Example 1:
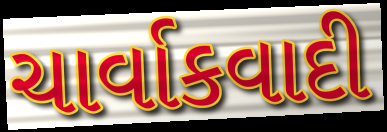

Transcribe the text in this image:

ચાર્વાકવાદી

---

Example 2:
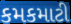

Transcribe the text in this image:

કમકમાટી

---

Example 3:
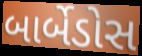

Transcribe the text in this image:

બાર્બેડોસ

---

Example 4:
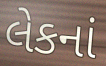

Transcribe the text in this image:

લેકનાં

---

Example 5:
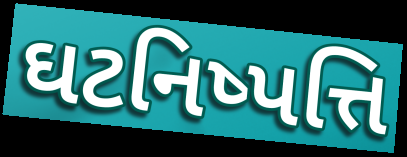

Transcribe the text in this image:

ઘટનિષ્પત્તિ